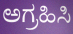
ಅಗ್ರಹಿಸಿ